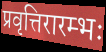
प्रवृत्तिरारम्भः